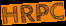
HRPC